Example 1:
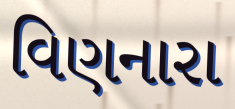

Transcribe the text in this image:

વિણનારા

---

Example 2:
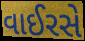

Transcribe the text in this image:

વાઈરસે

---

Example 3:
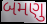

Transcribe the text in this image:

બમણુ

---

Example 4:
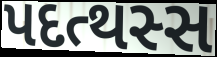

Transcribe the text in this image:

પદત્થસ્સ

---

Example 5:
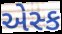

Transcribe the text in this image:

એસ્ક